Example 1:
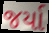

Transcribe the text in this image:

જર્યા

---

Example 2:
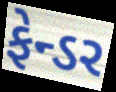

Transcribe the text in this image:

ફેન્ડર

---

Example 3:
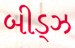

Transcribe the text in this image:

બીડ્ઝ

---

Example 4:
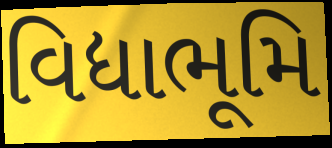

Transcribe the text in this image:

વિદ્યાભૂમિ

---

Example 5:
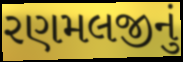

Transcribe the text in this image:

રણમલજીનું